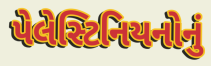
પેલેસ્ટિનિયનોનું